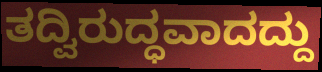
ತದ್ವಿರುದ್ಧವಾದದ್ದು